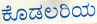
ಕೊಡಲರಿಯ